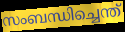
സംബന്ധിച്ചെന്ത്